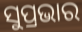
ସୁପ୍ରଭାର